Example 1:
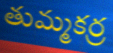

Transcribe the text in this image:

తుమ్మకర్ర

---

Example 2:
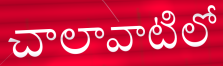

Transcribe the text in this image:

చాలావాటిలో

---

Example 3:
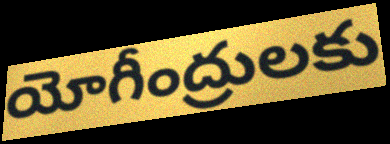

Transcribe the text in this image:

యోగీంద్రులకు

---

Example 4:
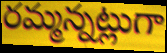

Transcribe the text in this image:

రమ్మన్నట్లుగా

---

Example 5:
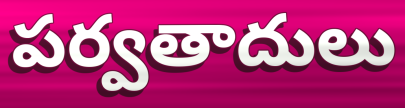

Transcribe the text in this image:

పర్వతాదులు